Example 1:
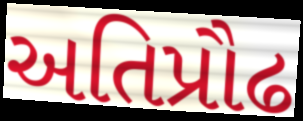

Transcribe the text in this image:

અતિપ્રૌઢ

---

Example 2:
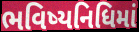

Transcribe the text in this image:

ભવિષ્યનિધિમાં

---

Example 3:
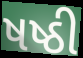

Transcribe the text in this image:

ષષ્ઠી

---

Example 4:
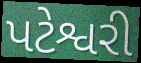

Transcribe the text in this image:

પટેશ્વરી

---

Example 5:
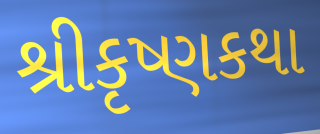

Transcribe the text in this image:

શ્રીકૃષ્ણકથા